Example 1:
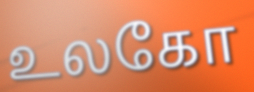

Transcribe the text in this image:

உலகோ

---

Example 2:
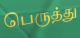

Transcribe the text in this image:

பெருத்து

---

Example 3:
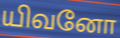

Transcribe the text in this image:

யிவனோ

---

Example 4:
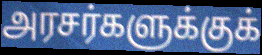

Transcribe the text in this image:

அரசர்களுக்குக்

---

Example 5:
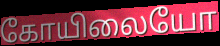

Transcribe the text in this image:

கோயிலையோ